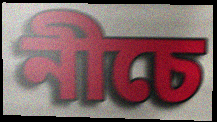
নীচে